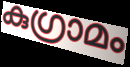
കുഗ്രാമം